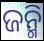
ଜନ୍ମି